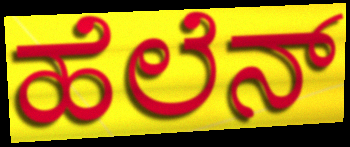
ಹೆಲೆನ್